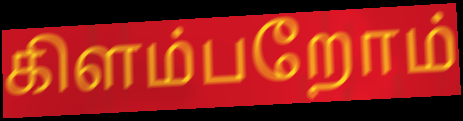
கிளம்பறோம்